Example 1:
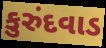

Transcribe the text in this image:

કુરુંદવાડ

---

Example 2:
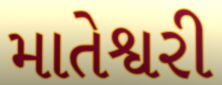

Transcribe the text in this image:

માતેશ્વરી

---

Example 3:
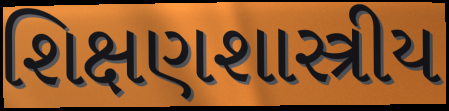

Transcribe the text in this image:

શિક્ષણશાસ્ત્રીય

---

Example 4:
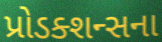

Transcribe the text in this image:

પ્રોડક્શન્સના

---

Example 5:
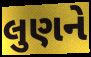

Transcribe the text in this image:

લુણને